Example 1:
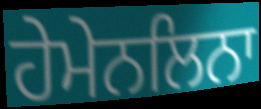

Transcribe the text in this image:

ਹੇਮੇਨਲਿਨਾ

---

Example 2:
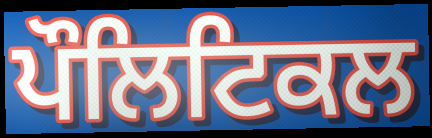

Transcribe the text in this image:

ਪੌਲਿਟਿਕਲ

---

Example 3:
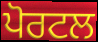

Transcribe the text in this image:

ਪੋਰਟਲ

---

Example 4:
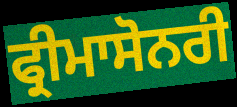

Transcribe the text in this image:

ਫ੍ਰੀਮਾਸੋਨਰੀ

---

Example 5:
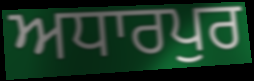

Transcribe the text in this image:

ਅਧਾਰਪੁਰ